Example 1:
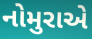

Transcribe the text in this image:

નોમુરાએ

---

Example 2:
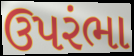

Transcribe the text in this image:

ઉપરંભા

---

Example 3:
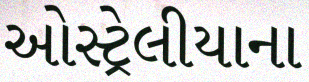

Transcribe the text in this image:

ઓસ્ટ્રેલીયાના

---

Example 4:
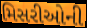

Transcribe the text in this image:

મિસરીઓની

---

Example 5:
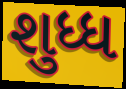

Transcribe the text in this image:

શુધ્ધ